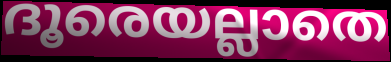
ദൂരെയല്ലാതെ